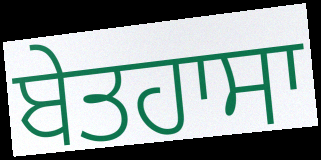
ਬੇਤਹਾਸਾ